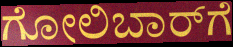
ಗೋಲಿಬಾರ್‌ಗೆ